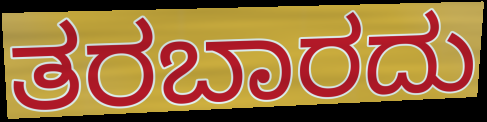
ತರಬಾರದು